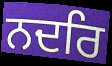
ਨਦਰਿ